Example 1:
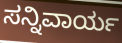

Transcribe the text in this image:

ಸನ್ನಿವಾರ್ಯ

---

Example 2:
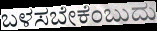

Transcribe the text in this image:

ಬಳಸಬೇಕೆಂಬುದು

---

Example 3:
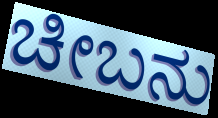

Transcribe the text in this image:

ಚೀಬನು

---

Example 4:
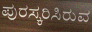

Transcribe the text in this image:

ಪುರಸ್ಕರಿಸಿರುವ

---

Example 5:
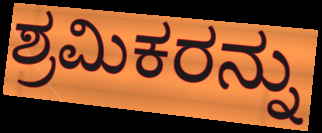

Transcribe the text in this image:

ಶ್ರಮಿಕರನ್ನು